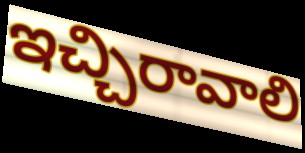
ఇచ్చిరావాలి